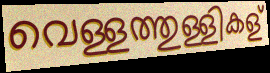
വെള്ളത്തുള്ളികള്